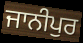
ਜਾਨੀਪੁਰ